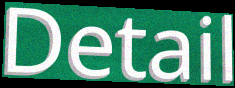
Detail